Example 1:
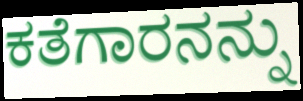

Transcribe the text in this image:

ಕತೆಗಾರನನ್ನು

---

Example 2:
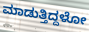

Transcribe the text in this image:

ಮಾಡುತ್ತಿದ್ದಳೋ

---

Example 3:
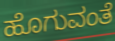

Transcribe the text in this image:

ಹೊಗುವಂತೆ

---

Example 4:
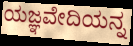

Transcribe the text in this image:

ಯಜ್ಞವೇದಿಯನ್ನ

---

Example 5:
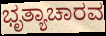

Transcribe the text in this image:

ಭೃತ್ಯಾಚಾರವ